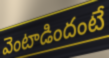
వెంటాడిందంటే